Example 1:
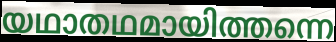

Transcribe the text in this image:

യഥാതഥമായിത്തന്നെ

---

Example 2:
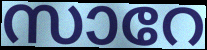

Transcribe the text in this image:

സാറേ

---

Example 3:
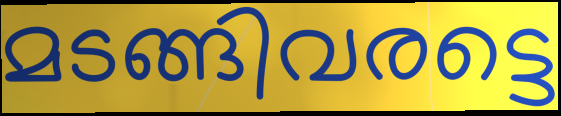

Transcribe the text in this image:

മടങ്ങിവരട്ടെ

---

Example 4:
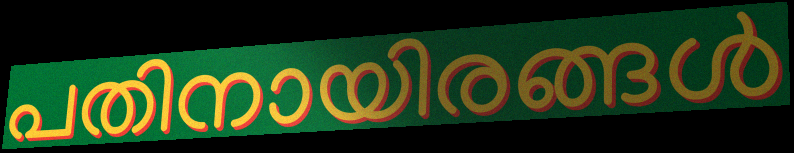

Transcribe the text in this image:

പതിനായിരങ്ങൾ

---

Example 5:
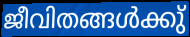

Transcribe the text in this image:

ജീവിതങ്ങൾക്കു്